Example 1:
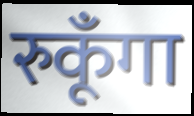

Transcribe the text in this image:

रुकूँगा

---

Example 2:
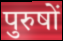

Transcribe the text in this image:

पुरुषों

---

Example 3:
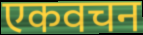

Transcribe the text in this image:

एकवचन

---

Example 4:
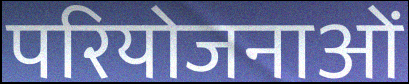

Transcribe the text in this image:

परियोजनाओं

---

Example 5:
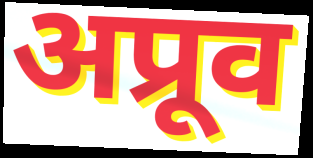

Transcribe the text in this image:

अप्रूव